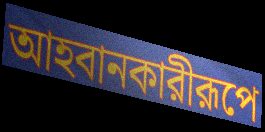
আহবানকারীরূপে